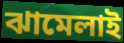
ঝামেলাই